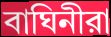
বাঘিনীরা